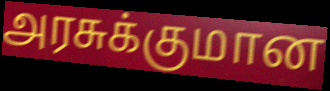
அரசுக்குமான